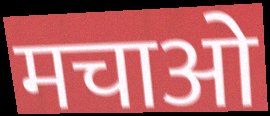
मचाओ